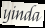
yinda